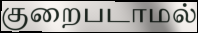
குறைபடாமல்